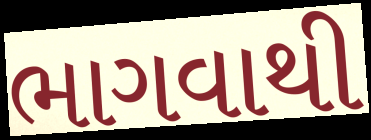
ભાગવાથી